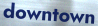
downtown